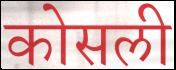
कोसली